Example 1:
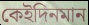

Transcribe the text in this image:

কেইদিনমান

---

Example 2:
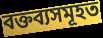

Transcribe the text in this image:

বক্তব্যসমূহত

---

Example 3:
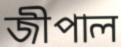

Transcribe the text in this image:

জীপাল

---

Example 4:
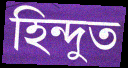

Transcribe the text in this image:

হিন্দুত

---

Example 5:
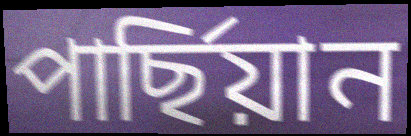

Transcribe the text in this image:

পাৰ্ছিয়ান